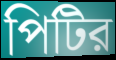
পিটির